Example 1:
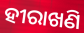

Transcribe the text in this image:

ହୀରାଖଣି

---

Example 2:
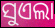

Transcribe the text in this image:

ସୁଏଲା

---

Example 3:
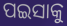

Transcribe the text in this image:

ପଇସାକୁ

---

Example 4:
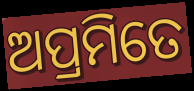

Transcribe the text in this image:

ଅପ୍ରମିତେ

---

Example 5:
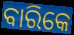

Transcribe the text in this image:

ବାରିକେ